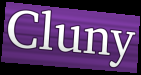
Cluny